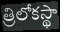
త్రిలోకస్థా